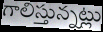
గాలిస్తున్నట్లు